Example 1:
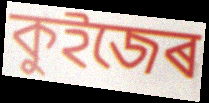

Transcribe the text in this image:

কুইজেৰ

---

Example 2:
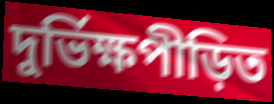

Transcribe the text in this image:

দুৰ্ভিক্ষপীড়িত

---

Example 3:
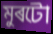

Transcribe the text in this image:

মুৰটো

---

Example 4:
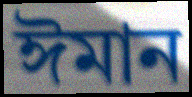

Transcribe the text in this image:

ঈমান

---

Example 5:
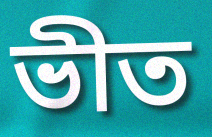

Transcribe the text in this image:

ভীত